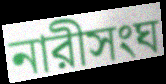
নারীসংঘ